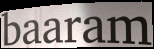
baaram